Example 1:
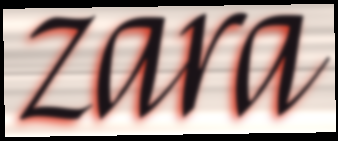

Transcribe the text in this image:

zara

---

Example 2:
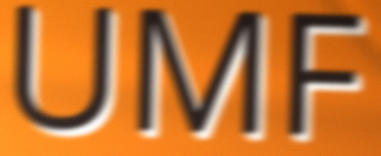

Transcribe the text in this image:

UMF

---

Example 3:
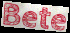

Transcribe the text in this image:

Bete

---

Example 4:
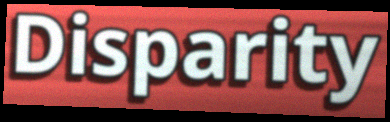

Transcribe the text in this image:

Disparity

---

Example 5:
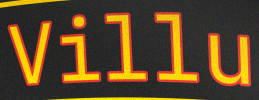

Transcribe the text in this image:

Villu